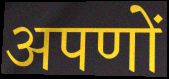
अपणों